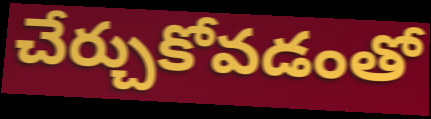
చేర్చుకోవడంతో